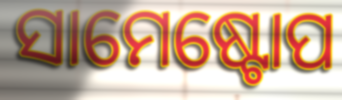
ସାମେଷ୍ଟୋପ